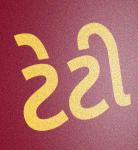
ટેટી